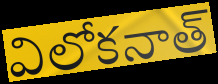
విలోకనాత్